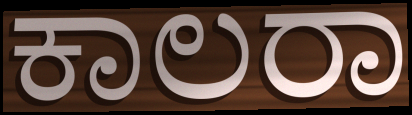
ಕಾಲರಾ